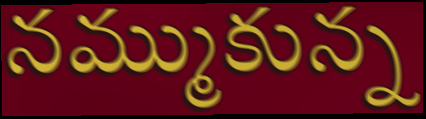
నమ్ముకున్న